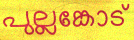
പുല്ലങ്കോട്